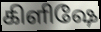
கிளிஷே